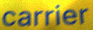
carrier